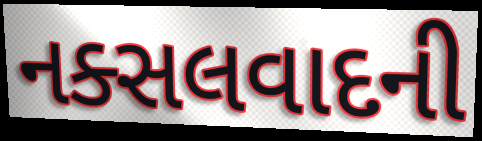
નક્સલવાદની